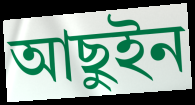
আছুইন